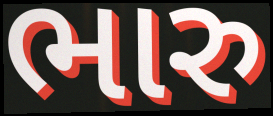
ભારુ